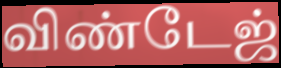
விண்டேஜ்